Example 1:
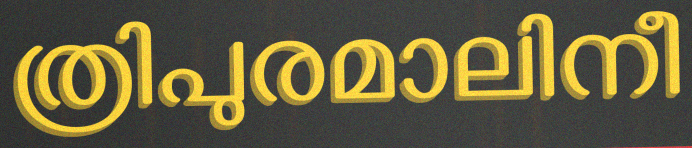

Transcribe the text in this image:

ത്രിപുരമാലിനീ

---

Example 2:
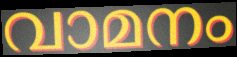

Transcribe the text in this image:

വാമനം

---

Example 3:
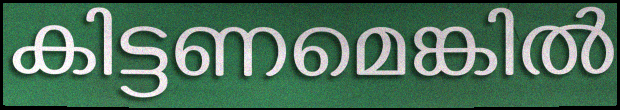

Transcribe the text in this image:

കിട്ടണമെങ്കിൽ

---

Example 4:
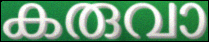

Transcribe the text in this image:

കരുവാ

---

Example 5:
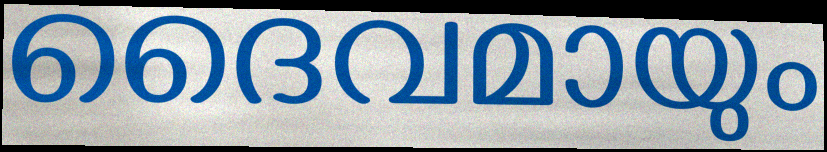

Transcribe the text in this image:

ദൈവമായും